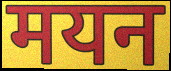
मयन